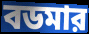
বডমার